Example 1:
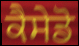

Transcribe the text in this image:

ਕੈਸੇਡੋ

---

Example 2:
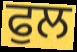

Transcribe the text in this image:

ਫੁਲ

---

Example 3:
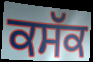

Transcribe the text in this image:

ਕਸੱਕ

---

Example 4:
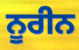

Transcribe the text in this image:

ਨੂਰੀਨ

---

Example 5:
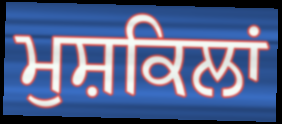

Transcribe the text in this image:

ਮੁਸ਼ਕਿਲਾਂ